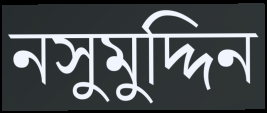
নসুমুদ্দিন